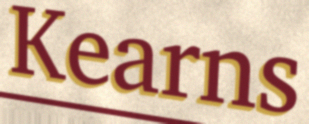
Kearns